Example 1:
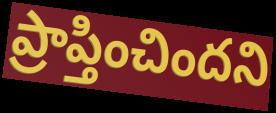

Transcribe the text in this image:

ప్రాప్తించిందని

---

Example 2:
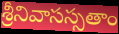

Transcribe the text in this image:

శ్రీనివాసస్సతాం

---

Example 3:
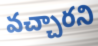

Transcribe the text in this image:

వచ్చారని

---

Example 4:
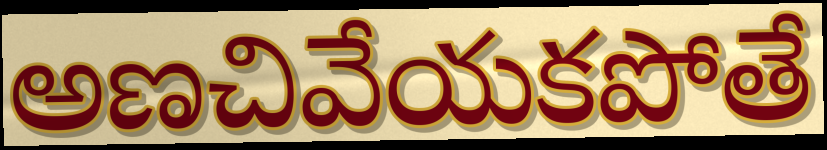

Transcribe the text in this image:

అణచివేయకపోతే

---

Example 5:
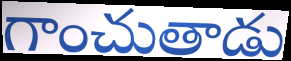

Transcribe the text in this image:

గాంచుతాడు